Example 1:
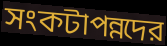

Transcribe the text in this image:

সংকটাপন্নদের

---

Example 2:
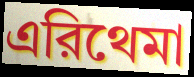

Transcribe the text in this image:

এরিথেমা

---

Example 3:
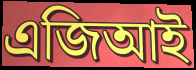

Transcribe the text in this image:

এজিআই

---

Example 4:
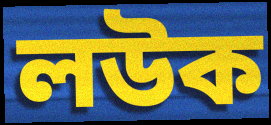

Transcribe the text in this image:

লউক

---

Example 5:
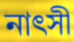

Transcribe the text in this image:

নাৎসী